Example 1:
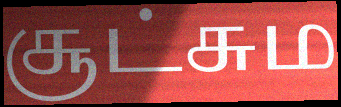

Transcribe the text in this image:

சூட்சும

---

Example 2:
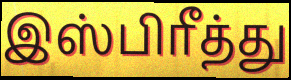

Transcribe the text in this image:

இஸ்பிரீத்து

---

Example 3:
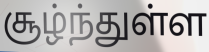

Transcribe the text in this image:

சூழ்ந்துள்ள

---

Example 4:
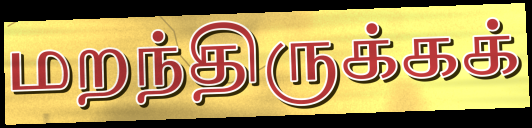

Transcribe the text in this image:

மறந்திருக்கக்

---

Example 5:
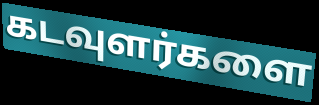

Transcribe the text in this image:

கடவுளர்களை